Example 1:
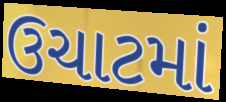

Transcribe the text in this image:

ઉચાટમાં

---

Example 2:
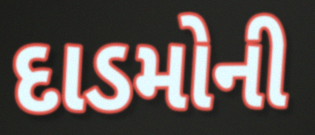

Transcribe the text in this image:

દાડમોની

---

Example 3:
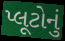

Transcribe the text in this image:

પ્લૂટોનું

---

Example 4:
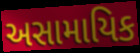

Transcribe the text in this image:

અસામાયિક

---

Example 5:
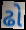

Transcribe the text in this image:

ઢો